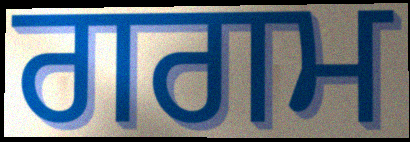
ਗਗਮ